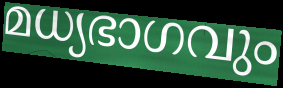
മധ്യഭാഗവും